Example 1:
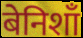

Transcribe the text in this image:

बेनिशाँ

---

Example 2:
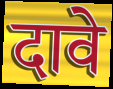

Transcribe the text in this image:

दावे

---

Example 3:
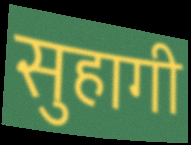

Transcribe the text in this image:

सुहागी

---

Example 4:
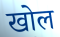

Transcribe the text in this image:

खोल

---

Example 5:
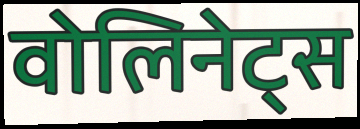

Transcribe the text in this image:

वोलिनेट्स